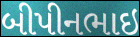
બીપીનભાઇ